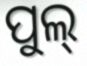
ପୁଲ୍